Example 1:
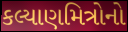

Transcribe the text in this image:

કલ્યાણમિત્રોનો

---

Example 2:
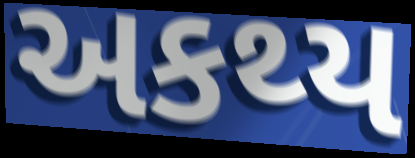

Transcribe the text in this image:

અકથ્ય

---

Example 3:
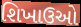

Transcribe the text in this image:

શિખાઉઓ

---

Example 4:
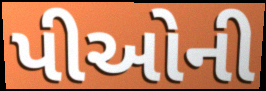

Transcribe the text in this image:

પીઓની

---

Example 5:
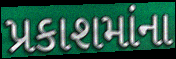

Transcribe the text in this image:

પ્રકાશમાંના